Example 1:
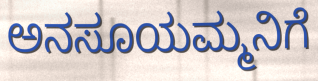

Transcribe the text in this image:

ಅನಸೂಯಮ್ಮನಿಗೆ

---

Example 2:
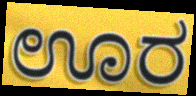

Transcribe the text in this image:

ಊರ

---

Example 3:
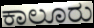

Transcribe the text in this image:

ಕಾಲೂರು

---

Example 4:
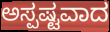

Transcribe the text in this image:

ಅಸ್ಪಷ್ಟವಾದ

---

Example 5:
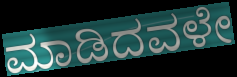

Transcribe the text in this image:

ಮಾಡಿದವಳೇ